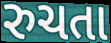
રુચતા